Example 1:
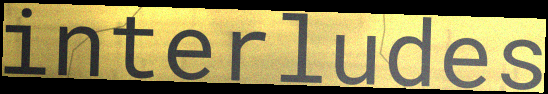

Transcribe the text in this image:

interludes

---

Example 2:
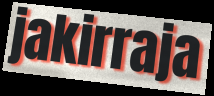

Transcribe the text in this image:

jakirraja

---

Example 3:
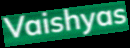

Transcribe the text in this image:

Vaishyas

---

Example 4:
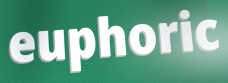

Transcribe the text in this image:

euphoric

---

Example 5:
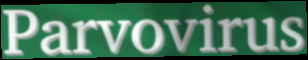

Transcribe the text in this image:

Parvovirus